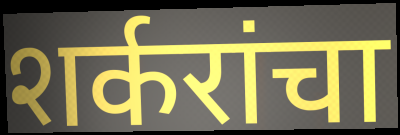
शर्करांचा